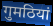
गुमठियां